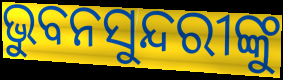
ଭୁବନସୁନ୍ଦରୀଙ୍କୁ